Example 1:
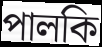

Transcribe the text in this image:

পালকি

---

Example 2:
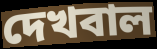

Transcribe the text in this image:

দেখবাল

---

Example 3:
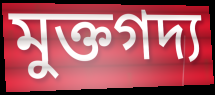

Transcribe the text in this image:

মুক্তগদ্য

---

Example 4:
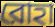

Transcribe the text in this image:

রোহা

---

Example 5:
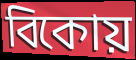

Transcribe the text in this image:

বিকোয়